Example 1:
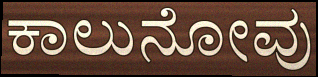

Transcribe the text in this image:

ಕಾಲುನೋವು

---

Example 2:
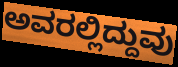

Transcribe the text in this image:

ಅವರಲ್ಲಿದ್ದುವು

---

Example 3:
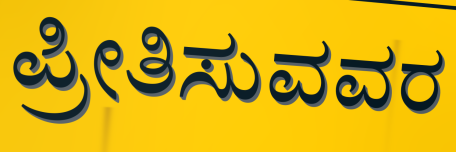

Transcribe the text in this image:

ಪ್ರೀತಿಸುವವರ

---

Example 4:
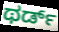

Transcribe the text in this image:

ಥರ್ಡ್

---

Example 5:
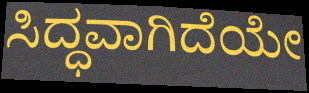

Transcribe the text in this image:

ಸಿದ್ಧವಾಗಿದೆಯೇ